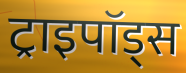
ट्राइपॉड्स